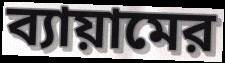
ব্যায়ামের